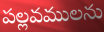
పల్లవములను